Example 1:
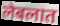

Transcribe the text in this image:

लेबलात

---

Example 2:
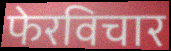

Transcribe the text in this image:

फेरविचार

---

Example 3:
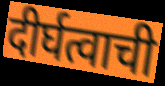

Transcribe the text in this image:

दीर्घत्वाची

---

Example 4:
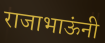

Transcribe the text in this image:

राजाभाऊंनी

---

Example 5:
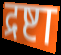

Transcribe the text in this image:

द्रष्टा